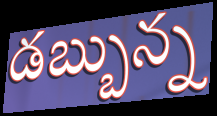
డబ్బున్న